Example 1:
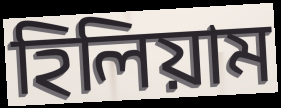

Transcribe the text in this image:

হিলিয়াম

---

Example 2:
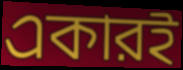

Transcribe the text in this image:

একারই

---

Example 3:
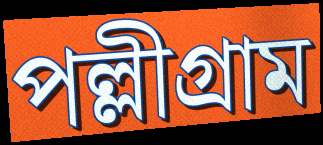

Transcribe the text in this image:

পল্লীগ্রাম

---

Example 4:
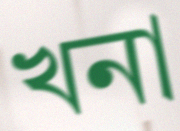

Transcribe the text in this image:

খনা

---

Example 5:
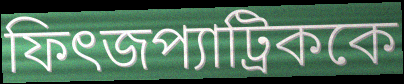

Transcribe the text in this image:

ফিৎজপ্যাট্রিককে